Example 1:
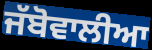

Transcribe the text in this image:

ਜੱਬੋਵਾਲੀਆ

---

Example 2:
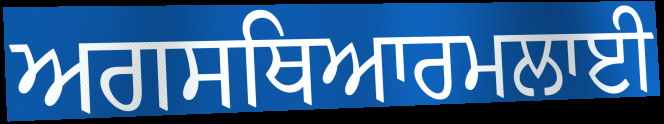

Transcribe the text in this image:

ਅਗਸਥਿਆਰਮਲਾਈ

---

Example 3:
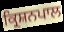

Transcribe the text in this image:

ਕ੍ਰਿਸ਼ਨਪਾਲ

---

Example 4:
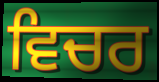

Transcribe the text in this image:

ਵਿਚਰ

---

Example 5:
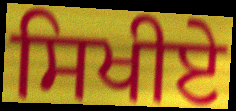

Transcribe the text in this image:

ਸਿਖੀਏ